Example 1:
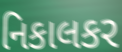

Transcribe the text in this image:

નિકાલકર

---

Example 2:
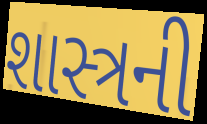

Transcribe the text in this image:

શાસ્ત્રની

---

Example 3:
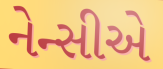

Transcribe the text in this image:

નેન્સીએ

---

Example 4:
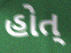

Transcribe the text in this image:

હોત્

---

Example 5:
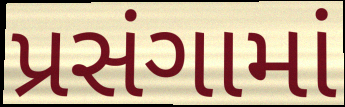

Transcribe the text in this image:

પ્રસંગામાં